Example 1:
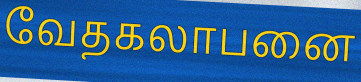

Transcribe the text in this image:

வேதகலாபனை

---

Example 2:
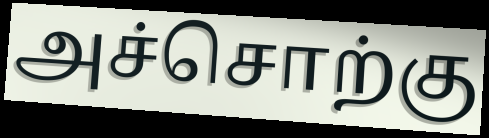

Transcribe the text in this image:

அச்சொற்கு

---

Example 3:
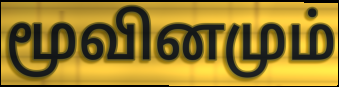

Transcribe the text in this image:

மூவினமும்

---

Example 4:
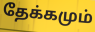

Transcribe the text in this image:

தேக்கமும்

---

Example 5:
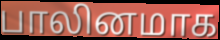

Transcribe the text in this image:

பாலினமாக